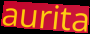
aurita